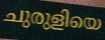
ചുരുളിയെ